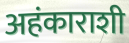
अहंकाराशी